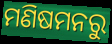
ମଣିଷମନରୁ